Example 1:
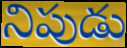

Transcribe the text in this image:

నిపుడు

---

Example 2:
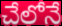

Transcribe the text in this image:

చేలోనే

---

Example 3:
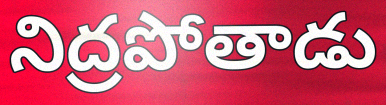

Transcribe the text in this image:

నిద్రపోతాడు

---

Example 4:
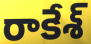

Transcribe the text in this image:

రాకేశ్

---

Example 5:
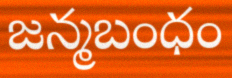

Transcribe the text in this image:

జన్మబంధం